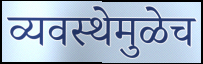
व्यवस्थेमुळेच